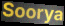
Soorya